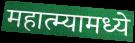
महात्म्यामध्ये